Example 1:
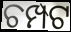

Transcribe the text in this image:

ଚମ୍ପଟ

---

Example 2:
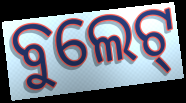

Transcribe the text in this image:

ବୁଲେଟ୍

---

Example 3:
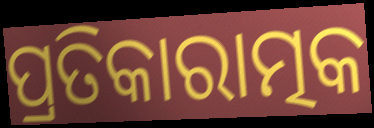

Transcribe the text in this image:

ପ୍ରତିକାରାତ୍ମକ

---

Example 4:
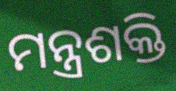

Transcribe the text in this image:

ମନ୍ତ୍ରଶକ୍ତି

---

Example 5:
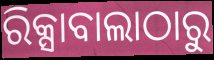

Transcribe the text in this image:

ରିକ୍ସାବାଲାଠାରୁ